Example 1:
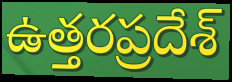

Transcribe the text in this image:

ఉత్తరప్రదేశ్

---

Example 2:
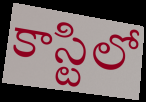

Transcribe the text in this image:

కాస్టిలో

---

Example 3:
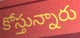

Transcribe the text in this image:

కోస్తున్నారు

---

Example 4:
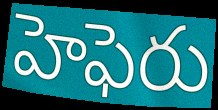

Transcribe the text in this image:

హెఫెరు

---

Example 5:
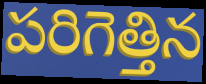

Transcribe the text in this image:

పరిగెత్తిన